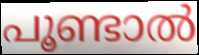
പൂണ്ടാൽ